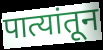
पात्यांतून